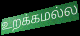
உறக்கமல்ல